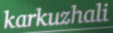
karkuzhali